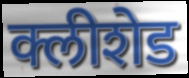
क्लीशेड